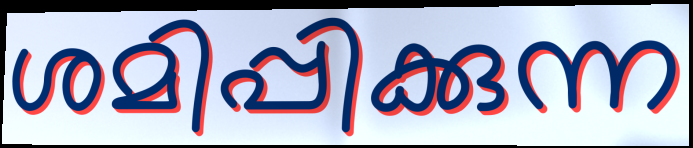
ശമിപ്പിക്കുന്ന